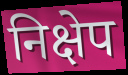
निक्षेप